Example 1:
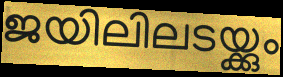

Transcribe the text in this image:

ജയിലിലടയ്ക്കും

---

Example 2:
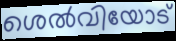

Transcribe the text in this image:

ശെൽവിയോട്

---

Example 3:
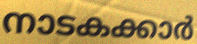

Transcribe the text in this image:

നാടകക്കാർ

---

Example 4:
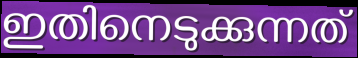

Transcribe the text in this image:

ഇതിനെടുക്കുന്നത്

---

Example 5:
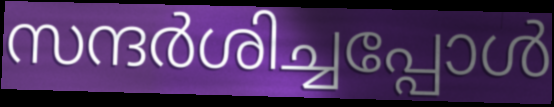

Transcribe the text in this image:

സന്ദർശിച്ചപ്പോൾ